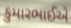
કુમારભાઈએ